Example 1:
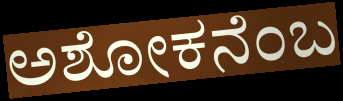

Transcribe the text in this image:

ಅಶೋಕನೆಂಬ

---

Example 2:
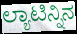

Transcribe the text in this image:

ಲ್ಯಾಟಿನ್ನಿನ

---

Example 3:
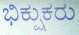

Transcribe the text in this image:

ಭಿಕ್ಷುಕರು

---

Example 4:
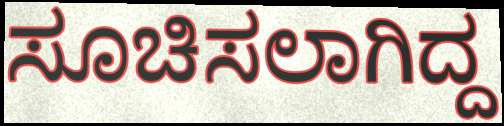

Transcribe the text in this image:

ಸೂಚಿಸಲಾಗಿದ್ದ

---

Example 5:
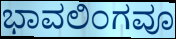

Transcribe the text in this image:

ಭಾವಲಿಂಗವೂ